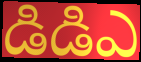
డిడిఎ